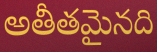
అతీతమైనది